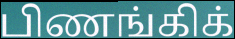
பிணங்கிக்